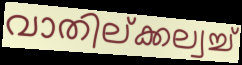
വാതില്ക്കല്വച്ച്